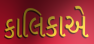
કાલિકાએ